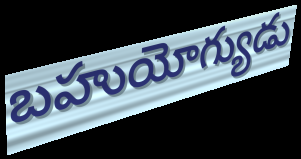
బహుయోగ్యుడు